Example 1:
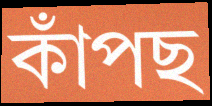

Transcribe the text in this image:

কাঁপছ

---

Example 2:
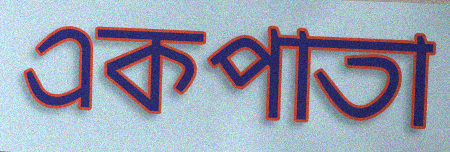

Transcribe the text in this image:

একপাতা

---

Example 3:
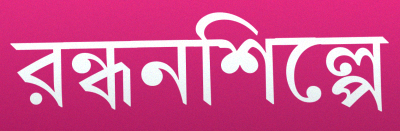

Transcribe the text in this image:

রন্ধনশিল্পে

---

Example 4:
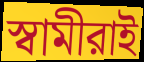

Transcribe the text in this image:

স্বামীরাই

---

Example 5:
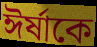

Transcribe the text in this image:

ঈর্ষাকে